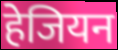
हेजियन